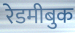
रेडमीबुक